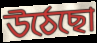
উঠেছো